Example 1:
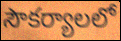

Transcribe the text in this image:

సౌకర్యాలలో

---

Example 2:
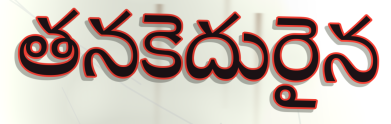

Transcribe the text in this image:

తనకెదురైన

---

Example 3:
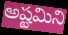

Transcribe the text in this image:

అష్టమిని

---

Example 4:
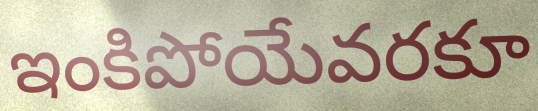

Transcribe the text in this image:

ఇంకిపోయేవరకూ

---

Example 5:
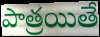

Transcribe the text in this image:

పాత్రయితే